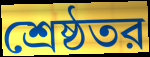
শ্রেষ্ঠতর